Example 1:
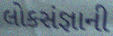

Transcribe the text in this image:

લોકસંજ્ઞાની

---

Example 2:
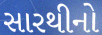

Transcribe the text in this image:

સારથીનો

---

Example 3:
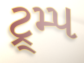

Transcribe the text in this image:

ટ્ર્મ્પ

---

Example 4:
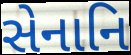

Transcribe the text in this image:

સેનાનિ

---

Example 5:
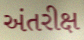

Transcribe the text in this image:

અંતરીક્ષ